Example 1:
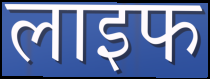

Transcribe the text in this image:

लाइफ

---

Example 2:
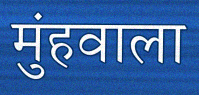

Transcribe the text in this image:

मुंहवाला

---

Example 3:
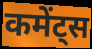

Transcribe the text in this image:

कमेंट्स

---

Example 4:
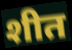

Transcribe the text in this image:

शीत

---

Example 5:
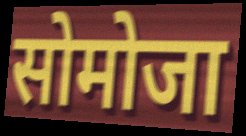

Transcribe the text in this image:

सोमोजा